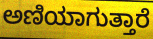
ಅಣಿಯಾಗುತ್ತಾರೆ